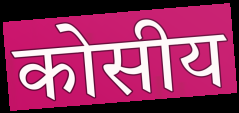
कोसीय